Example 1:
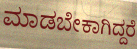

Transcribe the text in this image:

ಮಾಡಬೇಕಾಗಿದ್ದರೆ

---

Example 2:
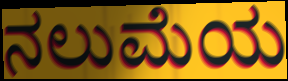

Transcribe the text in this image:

ನಲುಮೆಯ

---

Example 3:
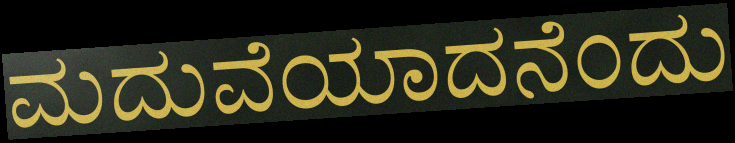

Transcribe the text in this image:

ಮದುವೆಯಾದನೆಂದು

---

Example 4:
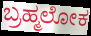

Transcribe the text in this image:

ಬ್ರಹ್ಮಲೋಕ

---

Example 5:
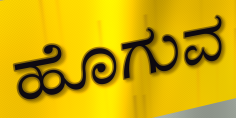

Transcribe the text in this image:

ಹೊಗುವ